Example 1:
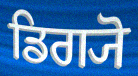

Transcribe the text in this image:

ਡਿਗ੍ਯੋ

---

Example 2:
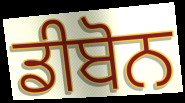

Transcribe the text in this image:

ਡੀਬੋਨ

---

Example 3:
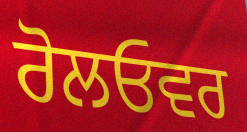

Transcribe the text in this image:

ਰੋਲਓਵਰ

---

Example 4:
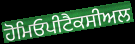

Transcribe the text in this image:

ਹੋਮਿਓਪੀਟੈਕਸੀਅਲ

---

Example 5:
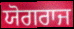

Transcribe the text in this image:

ਯੋਗਰਾਜ